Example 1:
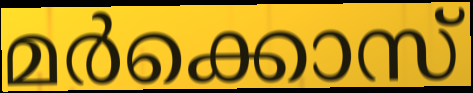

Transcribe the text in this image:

മർക്കൊസ്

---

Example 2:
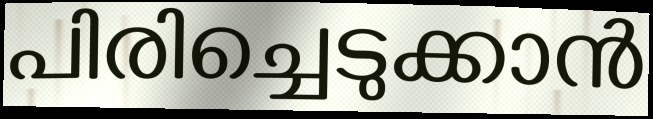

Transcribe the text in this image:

പിരിച്ചെടുക്കാൻ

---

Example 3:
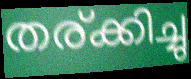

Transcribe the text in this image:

തര്ക്കിച്ചു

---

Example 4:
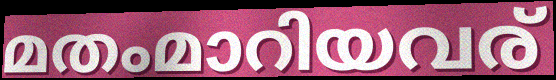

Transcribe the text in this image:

മതംമാറിയവര്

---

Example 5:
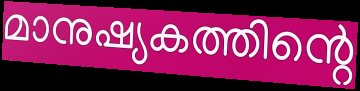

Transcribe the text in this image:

മാനുഷ്യകത്തിന്റെ